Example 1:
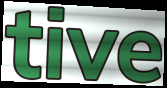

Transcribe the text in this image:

tive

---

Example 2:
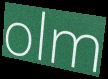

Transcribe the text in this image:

olm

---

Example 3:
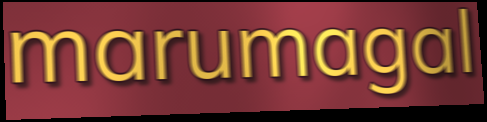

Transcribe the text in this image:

marumagal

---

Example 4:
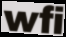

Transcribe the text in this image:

wfi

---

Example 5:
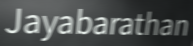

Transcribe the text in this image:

Jayabarathan